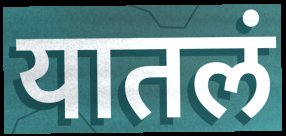
यातलं